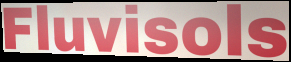
Fluvisols